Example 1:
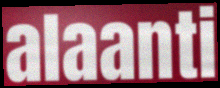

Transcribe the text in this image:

alaanti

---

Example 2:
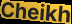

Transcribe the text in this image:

Cheikh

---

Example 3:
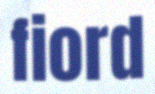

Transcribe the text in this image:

fiord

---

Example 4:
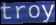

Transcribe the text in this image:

troy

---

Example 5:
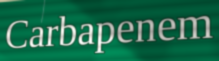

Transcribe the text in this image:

Carbapenem